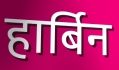
हार्बिन